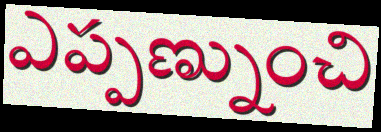
ఎప్పణ్నుంచి